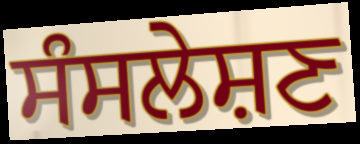
ਸੰਸਲੇਸ਼ਣ